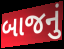
બાજનું